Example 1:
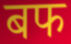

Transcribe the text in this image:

बफ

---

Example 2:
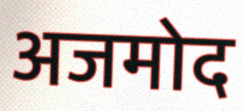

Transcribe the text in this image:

अजमोद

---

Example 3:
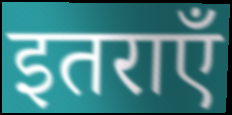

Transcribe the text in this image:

इतराएँ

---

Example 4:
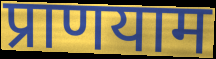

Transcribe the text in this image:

प्राणयाम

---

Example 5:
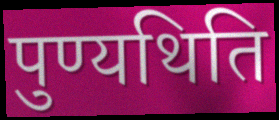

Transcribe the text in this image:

पुण्यथिति